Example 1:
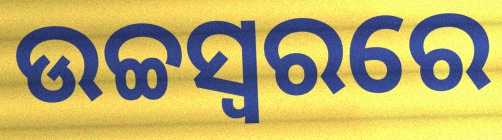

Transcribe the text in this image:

ଉଚ୍ଚସ୍ୱରରେ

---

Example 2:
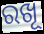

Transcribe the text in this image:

ରଖୂ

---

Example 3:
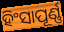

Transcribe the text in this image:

ହିଂସାପୂର୍ଣ୍ଣ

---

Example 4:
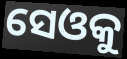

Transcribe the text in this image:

ସେଓକୁ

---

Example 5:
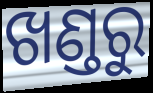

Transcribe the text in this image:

ଖଣ୍ଡରୁ